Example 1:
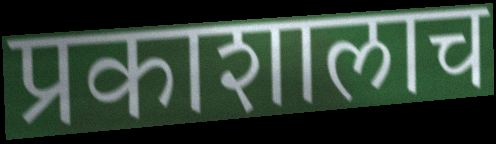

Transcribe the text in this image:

प्रकाशालाच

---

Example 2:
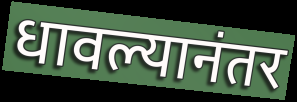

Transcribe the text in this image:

धावल्यानंतर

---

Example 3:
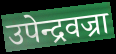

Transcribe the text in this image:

उपेन्द्रवज्रा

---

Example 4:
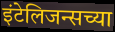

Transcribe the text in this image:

इंटेलिजन्सच्या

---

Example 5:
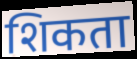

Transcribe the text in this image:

शिकता